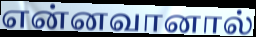
என்னவானால்